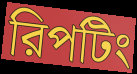
রিপটিং